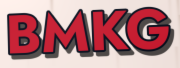
BMKG